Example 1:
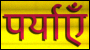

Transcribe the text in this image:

पर्याएँ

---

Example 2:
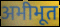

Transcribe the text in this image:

अभीभूत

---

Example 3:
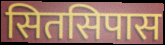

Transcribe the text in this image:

सितसिपास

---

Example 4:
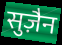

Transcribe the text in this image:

सुज़ैन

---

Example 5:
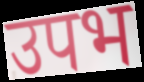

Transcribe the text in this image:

उपभ